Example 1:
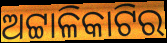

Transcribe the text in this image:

ଅଟ୍ଟାଳିକାଟିର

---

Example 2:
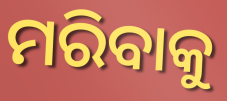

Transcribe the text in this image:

ମରିବାକୁ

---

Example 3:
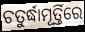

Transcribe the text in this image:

ଚତୁର୍ଦ୍ଧାମୂର୍ତ୍ତିରେ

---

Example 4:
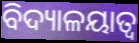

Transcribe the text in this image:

ବିଦ୍ୟାଳୟାତ୍ବ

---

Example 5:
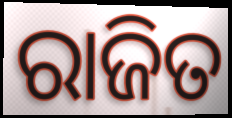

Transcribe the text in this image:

ରାଜିତ